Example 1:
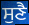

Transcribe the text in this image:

ਸੁਣੈ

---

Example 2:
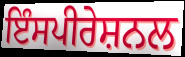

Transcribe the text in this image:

ਇੰਸਪੀਰੇਸ਼ਨਲ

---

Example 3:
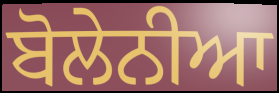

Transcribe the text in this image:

ਬੋਲੇਨੀਆ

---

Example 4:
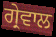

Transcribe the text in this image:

ਗ੍ਰੇਵਾਲ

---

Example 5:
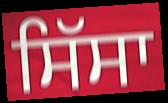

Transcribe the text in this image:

ਸਿੱਸਾ